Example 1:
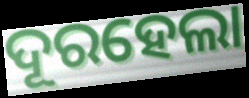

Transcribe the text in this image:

ଦୂରହେଲା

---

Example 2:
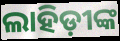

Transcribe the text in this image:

ଲାହିଡ଼ୀଙ୍କ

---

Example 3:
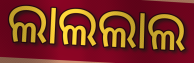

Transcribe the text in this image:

ଲାଲଲାଲ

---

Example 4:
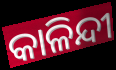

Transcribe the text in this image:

କାଳିନ୍ଦୀ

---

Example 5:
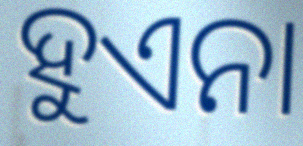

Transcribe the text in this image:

ହୁଏନା